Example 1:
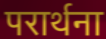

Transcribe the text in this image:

परार्थना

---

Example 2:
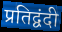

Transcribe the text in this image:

प्रतिद्वंदी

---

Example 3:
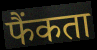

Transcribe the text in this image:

फैंकता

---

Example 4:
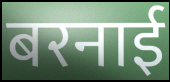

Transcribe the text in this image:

बरनाई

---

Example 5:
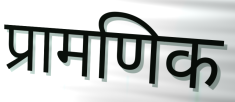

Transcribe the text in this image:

प्रामणिक